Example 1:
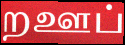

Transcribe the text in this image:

றஊப்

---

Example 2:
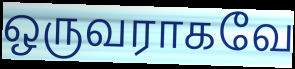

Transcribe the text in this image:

ஒருவராகவே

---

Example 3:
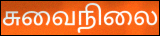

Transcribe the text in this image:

சுவைநிலை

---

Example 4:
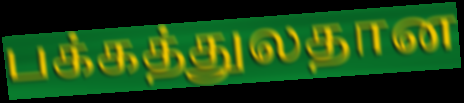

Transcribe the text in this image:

பக்கத்துலதான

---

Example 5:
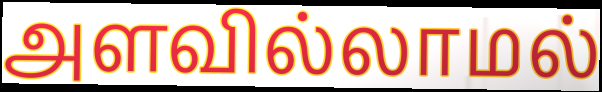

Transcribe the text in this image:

அளவில்லாமல்